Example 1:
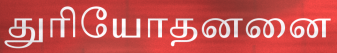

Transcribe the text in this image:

துரியோதனனை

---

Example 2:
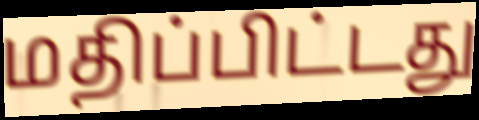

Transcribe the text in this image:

மதிப்பிட்டது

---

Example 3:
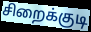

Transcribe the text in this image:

சிறைக்குடி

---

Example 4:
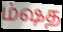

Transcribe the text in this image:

ம்ஷத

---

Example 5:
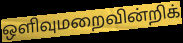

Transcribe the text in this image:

ஒளிவுமறைவின்றிக்